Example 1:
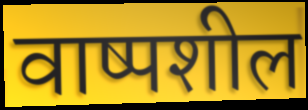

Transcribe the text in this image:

वाष्पशील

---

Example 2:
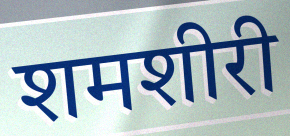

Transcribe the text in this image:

शमशीरी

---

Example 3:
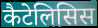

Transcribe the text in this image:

कैटेलिसिस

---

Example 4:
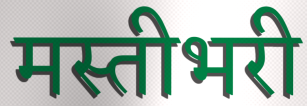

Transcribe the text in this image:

मस्तीभरी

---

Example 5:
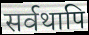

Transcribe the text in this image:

सर्वथापि